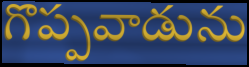
గొప్పవాడును